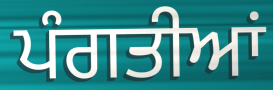
ਪੰਗਤੀਆਂ